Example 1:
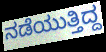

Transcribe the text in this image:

ನಡೆಯುತ್ತಿದ್ದ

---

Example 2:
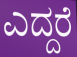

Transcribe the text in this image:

ಎದ್ದರೆ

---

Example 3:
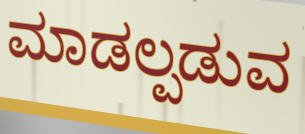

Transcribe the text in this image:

ಮಾಡಲ್ಪಡುವ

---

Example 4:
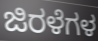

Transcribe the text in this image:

ಜಿರಳೆಗಳ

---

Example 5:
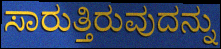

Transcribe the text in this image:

ಸಾರುತ್ತಿರುವುದನ್ನು